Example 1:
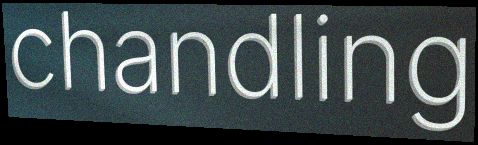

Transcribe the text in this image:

chandling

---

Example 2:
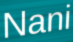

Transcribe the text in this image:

Nani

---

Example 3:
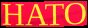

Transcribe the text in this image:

HATO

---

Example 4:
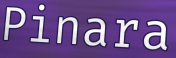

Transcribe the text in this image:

Pinara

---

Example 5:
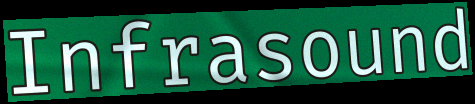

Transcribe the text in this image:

Infrasound